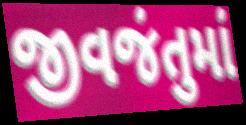
જીવજંતુમાં